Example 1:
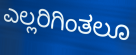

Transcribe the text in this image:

ಎಲ್ಲರಿಗಿಂತಲೂ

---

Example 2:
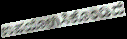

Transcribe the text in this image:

ಉಪಯೋಗಿಸಿಕೊಂಡಿದೆ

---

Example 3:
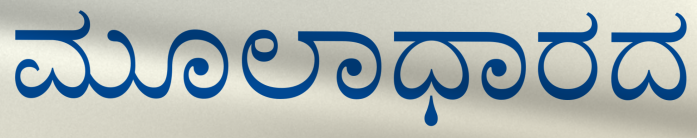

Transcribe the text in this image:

ಮೂಲಾಧಾರದ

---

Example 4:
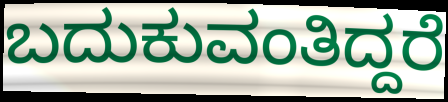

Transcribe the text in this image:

ಬದುಕುವಂತಿದ್ದರೆ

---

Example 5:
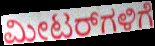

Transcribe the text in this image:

ಮೀಟರ್‌ಗಳಿಗೆ